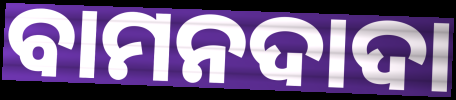
ବାମନଦାଦା